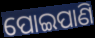
ପୋଇପାଣି